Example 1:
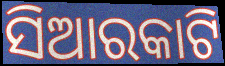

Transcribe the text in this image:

ସିଆରକାଟି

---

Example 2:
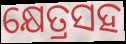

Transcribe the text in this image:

କ୍ଷେତ୍ରସହ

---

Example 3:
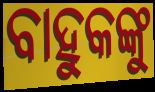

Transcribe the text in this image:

ବାହୁକଙ୍କୁ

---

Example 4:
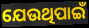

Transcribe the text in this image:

ଯେଉଥିପାଇଁ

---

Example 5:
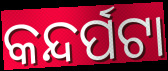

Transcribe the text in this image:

କନ୍ଦର୍ପଟା